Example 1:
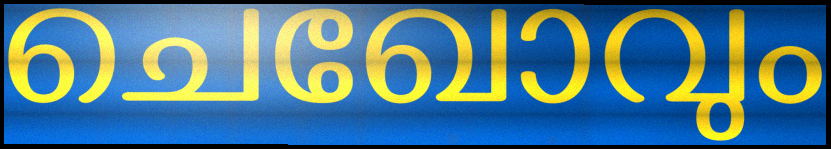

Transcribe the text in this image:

ചെഖോവും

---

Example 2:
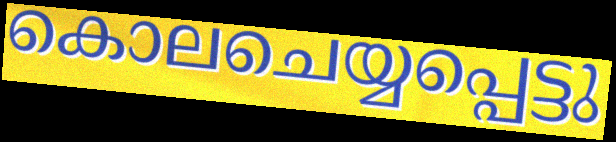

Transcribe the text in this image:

കൊലചെയ്യപ്പെട്ടു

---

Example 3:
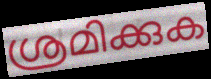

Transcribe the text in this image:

ശ്രമിക്കുക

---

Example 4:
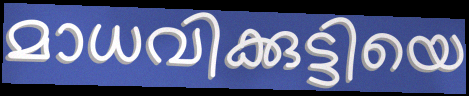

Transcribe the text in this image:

മാധവിക്കുട്ടിയെ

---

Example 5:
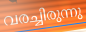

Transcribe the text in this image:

വരച്ചിരുന്നു